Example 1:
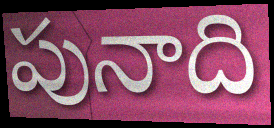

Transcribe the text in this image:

పునాది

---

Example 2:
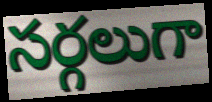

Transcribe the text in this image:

సర్గలుగా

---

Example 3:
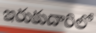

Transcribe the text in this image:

ఇరుకుదారిలో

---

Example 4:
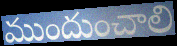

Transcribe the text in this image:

ముందుంచాలి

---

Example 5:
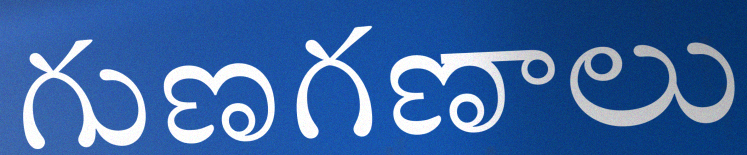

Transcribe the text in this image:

గుణగణాలు